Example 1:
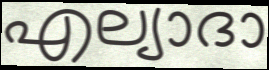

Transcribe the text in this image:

എല്യാദാ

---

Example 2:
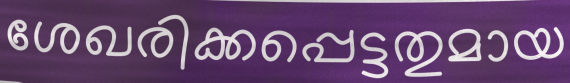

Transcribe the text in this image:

ശേഖരിക്കപ്പെട്ടതുമായ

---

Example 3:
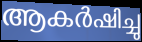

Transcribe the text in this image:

ആകർഷിച്ചു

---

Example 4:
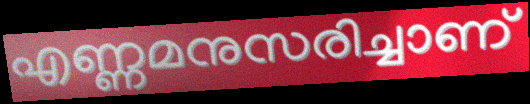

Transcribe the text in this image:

എണ്ണമനുസരിച്ചാണ്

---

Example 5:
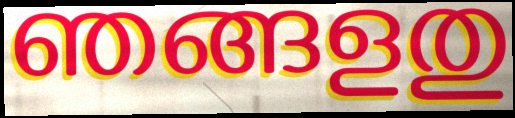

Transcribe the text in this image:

ഞങ്ങളതു